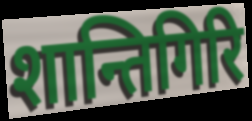
शान्तिगिरि